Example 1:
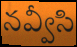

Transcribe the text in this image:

నవ్వీసి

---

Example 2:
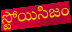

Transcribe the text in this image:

స్టోయిసిజం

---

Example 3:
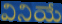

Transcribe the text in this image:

వినియే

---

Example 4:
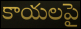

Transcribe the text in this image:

కాయలపై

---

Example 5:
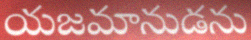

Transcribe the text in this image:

యజమానుడను